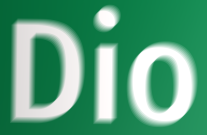
Dio